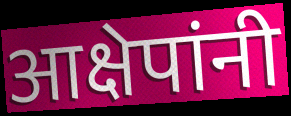
आक्षेपांनी